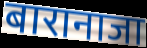
बारानाजा